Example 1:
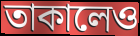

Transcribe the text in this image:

তাকালেও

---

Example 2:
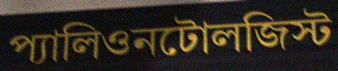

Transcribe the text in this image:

প্যালিওনটোলজিস্ট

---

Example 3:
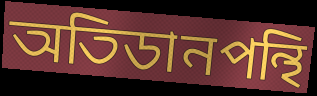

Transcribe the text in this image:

অতিডানপন্থি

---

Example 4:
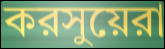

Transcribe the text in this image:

করসুয়েরা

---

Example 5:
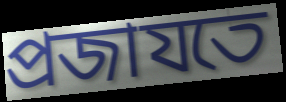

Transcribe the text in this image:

প্রজাযতে